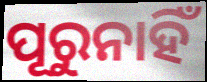
ପୂରୁନାହିଁ